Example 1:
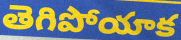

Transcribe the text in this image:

తెగిపోయాక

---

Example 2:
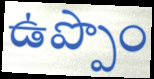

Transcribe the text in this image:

ఉప్పొం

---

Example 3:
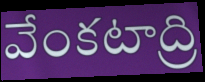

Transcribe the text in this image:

వేంకటాద్రి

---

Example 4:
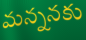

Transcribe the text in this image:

మన్ననకు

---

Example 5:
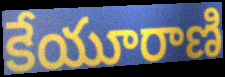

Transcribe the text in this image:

కేయూరాణి